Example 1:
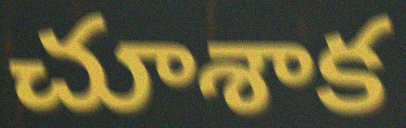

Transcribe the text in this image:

చూశాక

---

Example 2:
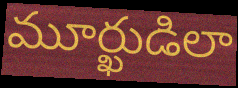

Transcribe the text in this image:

మూర్ఖుడిలా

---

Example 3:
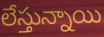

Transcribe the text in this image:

లేస్తున్నాయి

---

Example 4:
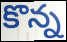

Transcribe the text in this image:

కొన్న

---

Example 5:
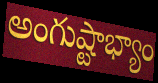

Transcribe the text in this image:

అంగుష్టాభ్యాం